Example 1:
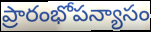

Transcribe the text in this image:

ప్రారంభోపన్యాసం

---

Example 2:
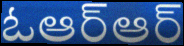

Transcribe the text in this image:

ఓఆర్ఆర్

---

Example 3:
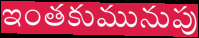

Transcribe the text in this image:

ఇంతకుమునుపు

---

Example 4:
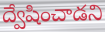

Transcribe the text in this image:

ద్వేషించాడని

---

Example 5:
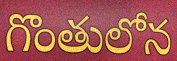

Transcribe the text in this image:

గొంతులోన